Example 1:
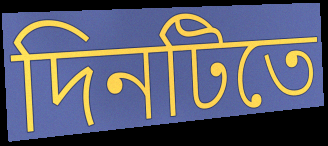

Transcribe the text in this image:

দিনটিতে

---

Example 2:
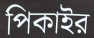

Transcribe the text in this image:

পিকাইর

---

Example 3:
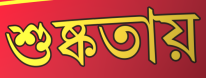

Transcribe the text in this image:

শুষ্কতায়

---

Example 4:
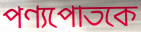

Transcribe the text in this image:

পণ্যপোতকে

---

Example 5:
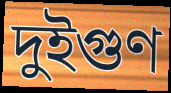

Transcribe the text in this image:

দুইগুণ